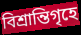
বিশ্রান্তিগৃহে